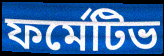
ফর্মেটিভ